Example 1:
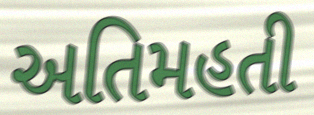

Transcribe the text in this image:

અતિમહતી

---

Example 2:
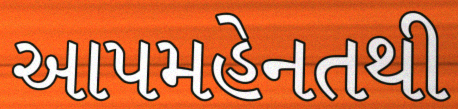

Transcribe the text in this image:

આપમહેનતથી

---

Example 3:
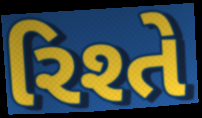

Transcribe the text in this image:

રિશ્તે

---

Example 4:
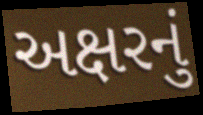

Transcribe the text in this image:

અક્ષરનું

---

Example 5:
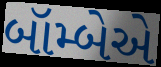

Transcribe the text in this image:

બૉમ્બેએ